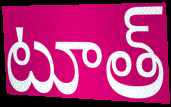
టూత్